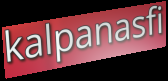
kalpanasfi